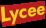
Lycee